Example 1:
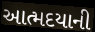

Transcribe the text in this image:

આત્મદયાની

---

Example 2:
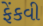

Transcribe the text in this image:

ફેંકવી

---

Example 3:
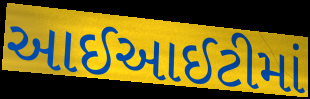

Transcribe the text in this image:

આઈઆઈટીમાં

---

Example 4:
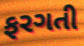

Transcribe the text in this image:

ફરગતી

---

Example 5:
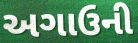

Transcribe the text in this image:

અગાઉની